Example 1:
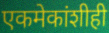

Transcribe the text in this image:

एकमेकांशीही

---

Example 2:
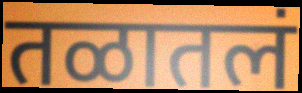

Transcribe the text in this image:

तळातलं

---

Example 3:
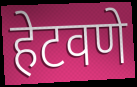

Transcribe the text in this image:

हेटवणे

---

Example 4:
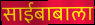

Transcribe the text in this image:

साईबाबाला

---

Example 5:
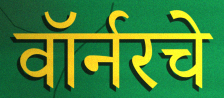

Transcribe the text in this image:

वॉर्नरचे